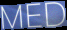
MED